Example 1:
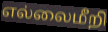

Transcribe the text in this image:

எல்லைமீறி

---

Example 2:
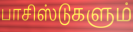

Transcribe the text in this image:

பாசிஸ்டுகளும்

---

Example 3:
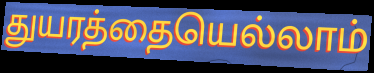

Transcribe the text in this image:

துயரத்தையெல்லாம்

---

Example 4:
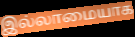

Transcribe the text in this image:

இல்லாமையாக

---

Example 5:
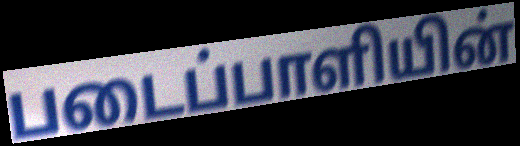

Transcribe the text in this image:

படைப்பாளியின்